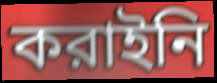
করাইনি